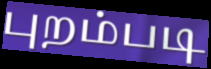
புறம்படி